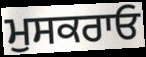
ਮੁਸਕਰਾਓ